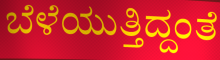
ಬೆಳೆಯುತ್ತಿದ್ದಂತೆ